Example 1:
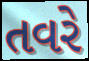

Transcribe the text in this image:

તવરે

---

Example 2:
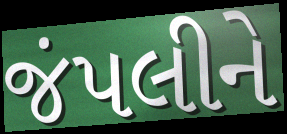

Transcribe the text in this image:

જંપલીને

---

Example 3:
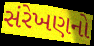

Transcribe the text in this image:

સંરેખણનો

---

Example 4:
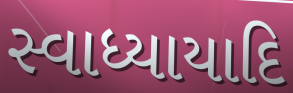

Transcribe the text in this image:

સ્વાધ્યાયાદિ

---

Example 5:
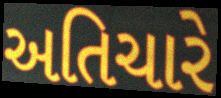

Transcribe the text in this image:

અતિચારે